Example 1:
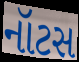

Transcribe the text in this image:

નૉટસ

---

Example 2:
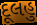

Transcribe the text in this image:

દૂલહુ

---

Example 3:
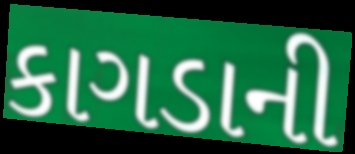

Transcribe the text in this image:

કાગડાની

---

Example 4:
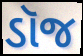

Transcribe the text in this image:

ડૉજ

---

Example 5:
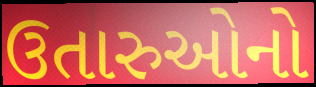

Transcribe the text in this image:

ઉતારુઓનો